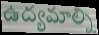
ఉద్యమాల్ని